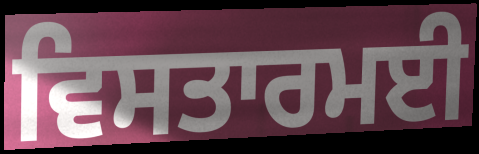
ਵਿਸਤਾਰਮਈ